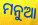
ମନୁଆ